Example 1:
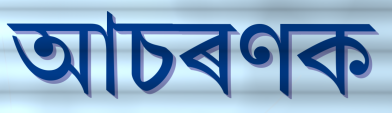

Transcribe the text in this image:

আচৰণক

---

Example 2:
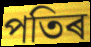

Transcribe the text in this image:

পতিৰ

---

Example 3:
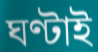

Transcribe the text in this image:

ঘণ্টাই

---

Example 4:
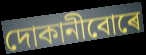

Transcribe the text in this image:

দোকানীবোৰে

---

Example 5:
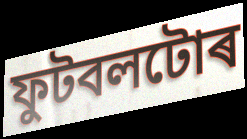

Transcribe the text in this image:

ফুটবলটোৰ